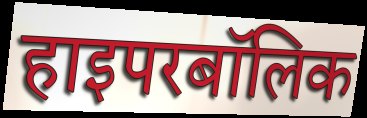
हाइपरबॉलिक